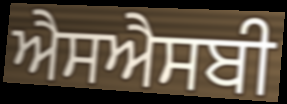
ਐਸਐਸਬੀ